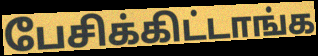
பேசிக்கிட்டாங்க